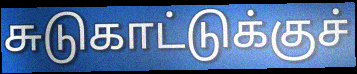
சுடுகாட்டுக்குச்